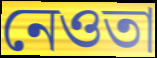
নেওতা